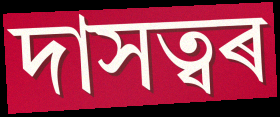
দাসত্বৰ